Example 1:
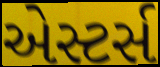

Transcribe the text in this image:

એસ્ટર્સ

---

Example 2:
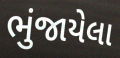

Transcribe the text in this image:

ભુંજાયેલા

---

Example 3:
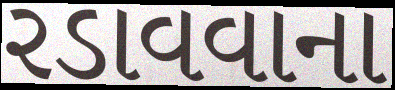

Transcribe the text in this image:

રડાવવાના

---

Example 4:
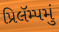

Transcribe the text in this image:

પ્રિલૅમ્પમું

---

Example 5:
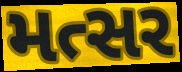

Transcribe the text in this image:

મત્સર